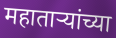
महाताऱ्यांच्या